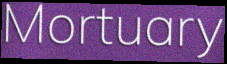
Mortuary